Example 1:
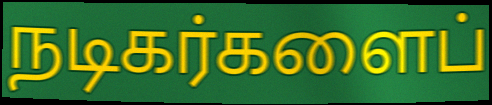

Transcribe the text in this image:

நடிகர்களைப்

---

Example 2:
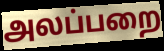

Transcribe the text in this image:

அலப்பறை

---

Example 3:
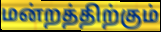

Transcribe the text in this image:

மன்றத்திற்கும்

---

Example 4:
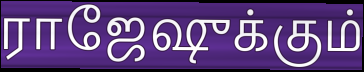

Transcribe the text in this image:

ராஜேஷுக்கும்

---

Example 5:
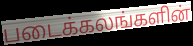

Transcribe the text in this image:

படைக்கலங்களின்